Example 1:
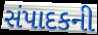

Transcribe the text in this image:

સંપાદકની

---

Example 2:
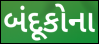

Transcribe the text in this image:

બંદૂકોના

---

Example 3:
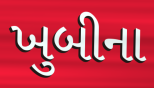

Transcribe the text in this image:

ખુબીના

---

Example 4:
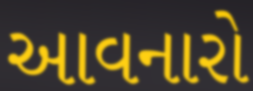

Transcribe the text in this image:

આવનારો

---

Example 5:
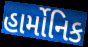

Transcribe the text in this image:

હાર્મોનિક